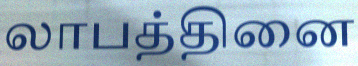
லாபத்தினை